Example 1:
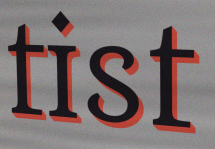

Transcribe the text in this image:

tist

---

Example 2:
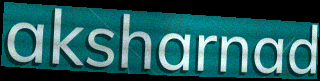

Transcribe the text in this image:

aksharnad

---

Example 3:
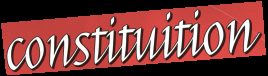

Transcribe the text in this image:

constituition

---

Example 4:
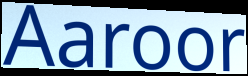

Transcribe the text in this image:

Aaroor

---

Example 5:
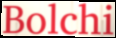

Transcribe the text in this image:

Bolchi